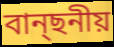
বান্ছনীয়